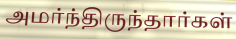
அமர்ந்திருந்தார்கள்